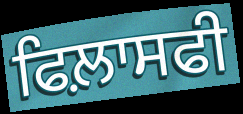
ਫਿਲ਼ਾਸਫੀ